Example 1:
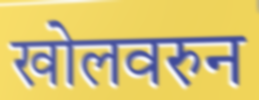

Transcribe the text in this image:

खोलवरुन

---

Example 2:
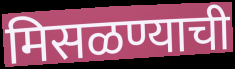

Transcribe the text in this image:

मिसळण्याची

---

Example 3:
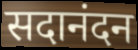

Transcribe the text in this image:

सदानंदन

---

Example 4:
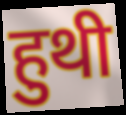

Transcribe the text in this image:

हुथी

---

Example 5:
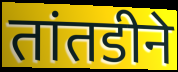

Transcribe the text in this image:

तांतडीने